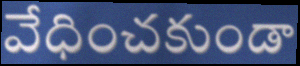
వేధించకుండా